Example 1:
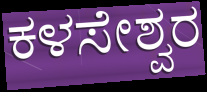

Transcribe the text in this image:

ಕಳಸೇಶ್ವರ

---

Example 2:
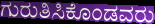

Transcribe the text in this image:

ಗುರುತಿಸಿಕೊಂಡವರು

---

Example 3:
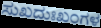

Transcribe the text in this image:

ಸುಖದುಃಖಂಗಳ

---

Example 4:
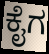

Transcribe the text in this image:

ಕೈಗ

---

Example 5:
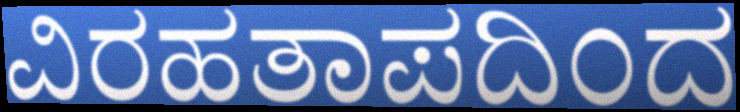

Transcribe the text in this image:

ವಿರಹತಾಪದಿಂದ